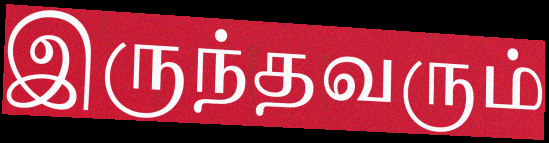
இருந்தவரும்